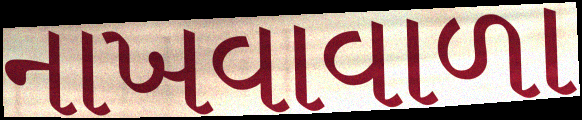
નાખવાવાળા